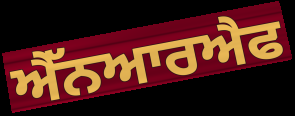
ਐੱਨਆਰਐਫ